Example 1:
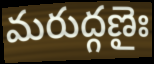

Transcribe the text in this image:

మరుద్గణైః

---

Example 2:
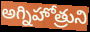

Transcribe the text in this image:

అగ్నిహోత్రుని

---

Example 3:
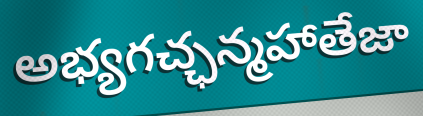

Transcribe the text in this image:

అభ్యగచ్ఛన్మహాతేజా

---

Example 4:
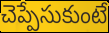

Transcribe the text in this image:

చెప్పేసుకుంటే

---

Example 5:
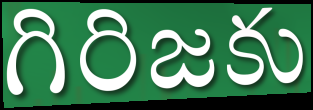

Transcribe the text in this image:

గిరిజకు